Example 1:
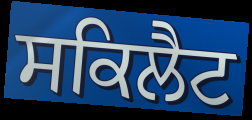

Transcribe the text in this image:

ਸਕਿਲੈਟ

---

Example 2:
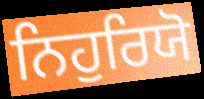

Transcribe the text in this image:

ਨਿਹੁਰਿਯੋ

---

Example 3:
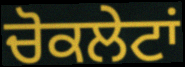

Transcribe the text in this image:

ਚੋਕਲੇਟਾਂ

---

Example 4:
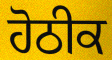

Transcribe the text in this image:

ਹੋਠੀਕ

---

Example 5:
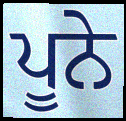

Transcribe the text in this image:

ਪੂਨੇ